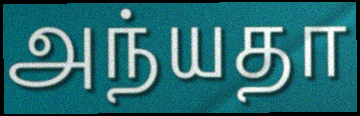
அந்யதா